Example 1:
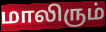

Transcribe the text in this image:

மாலிரும்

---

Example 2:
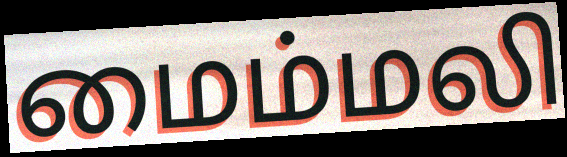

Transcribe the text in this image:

மைம்மலி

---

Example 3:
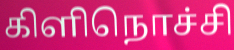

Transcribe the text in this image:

கிளிநொச்சி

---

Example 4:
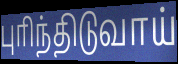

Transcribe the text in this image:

புரிந்திடுவாய்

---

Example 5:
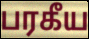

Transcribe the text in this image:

பரகீய